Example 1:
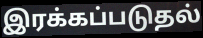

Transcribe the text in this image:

இரக்கப்படுதல்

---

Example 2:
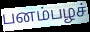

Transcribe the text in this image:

பனம்பழச்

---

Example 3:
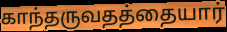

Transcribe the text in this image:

காந்தருவதத்தையார்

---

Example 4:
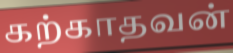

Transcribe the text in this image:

கற்காதவன்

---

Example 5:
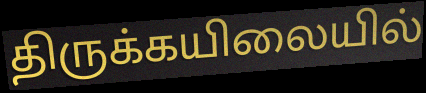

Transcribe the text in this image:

திருக்கயிலையில்